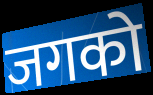
जगको